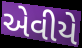
એવીયે